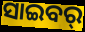
ସାଇବର୍